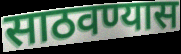
साठवण्यास